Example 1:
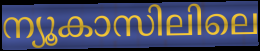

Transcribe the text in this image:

ന്യൂകാസിലിലെ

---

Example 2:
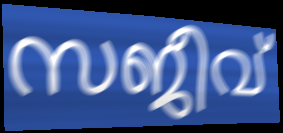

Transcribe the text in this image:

സജീവ്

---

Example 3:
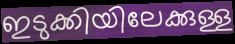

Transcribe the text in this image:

ഇടുക്കിയിലേക്കുള്ള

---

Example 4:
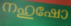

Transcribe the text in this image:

നഹുഷോ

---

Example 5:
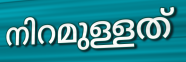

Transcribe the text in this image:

നിറമുള്ളത്